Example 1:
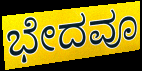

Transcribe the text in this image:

ಭೇದವೂ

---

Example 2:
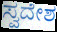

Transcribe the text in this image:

ಸ್ವದೇಶ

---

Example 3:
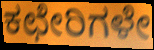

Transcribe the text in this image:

ಕಛೇರಿಗಳೇ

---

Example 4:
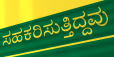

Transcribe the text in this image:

ಸಹಕರಿಸುತ್ತಿದ್ದವು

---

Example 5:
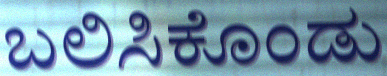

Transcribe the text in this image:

ಬಲಿಸಿಕೊಂಡು